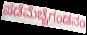
ಪಡೆಮೆಚ್ಚೆಗಂಡನಂ